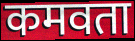
कमवता